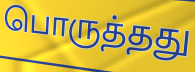
பொருத்தது